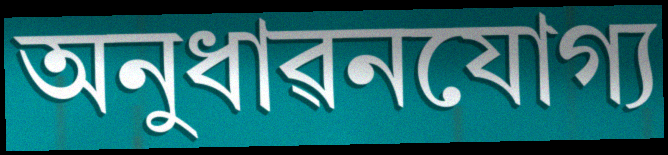
অনুধাৱনযোগ্য